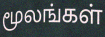
மூலங்கள்